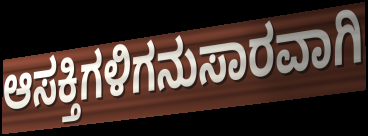
ಆಸಕ್ತಿಗಳಿಗನುಸಾರವಾಗಿ